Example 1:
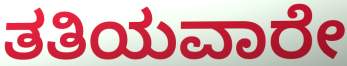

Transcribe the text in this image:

ತತಿಯವಾರೇ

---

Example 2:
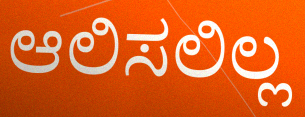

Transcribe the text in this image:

ಆಲಿಸಲಿಲ್ಲ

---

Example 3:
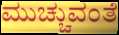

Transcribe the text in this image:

ಮುಚ್ಚುವಂತೆ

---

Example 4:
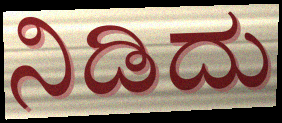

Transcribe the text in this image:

ನಿಡಿದು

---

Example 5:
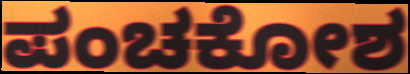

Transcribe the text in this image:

ಪಂಚಕೋಶ